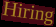
Hiring